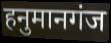
हनुमानगंज